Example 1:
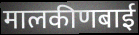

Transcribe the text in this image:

मालकीणबाई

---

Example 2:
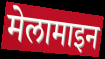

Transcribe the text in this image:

मेलामाइन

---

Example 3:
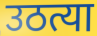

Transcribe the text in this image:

उठत्या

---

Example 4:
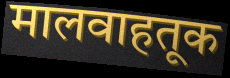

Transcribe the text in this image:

मालवाहतूक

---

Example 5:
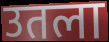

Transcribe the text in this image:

उतला